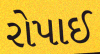
રોપાઈ